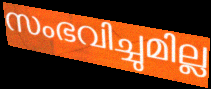
സംഭവിച്ചുമില്ല